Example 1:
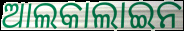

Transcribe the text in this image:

ଆଲକାଲାଇନ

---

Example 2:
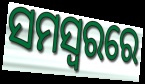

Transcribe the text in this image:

ସମସ୍ବରରେ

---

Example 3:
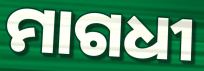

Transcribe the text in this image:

ମାଗଧୀ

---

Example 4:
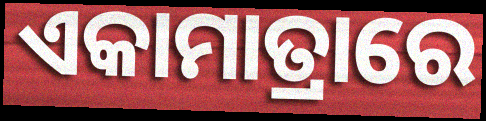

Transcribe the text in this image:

ଏକାମାତ୍ରାରେ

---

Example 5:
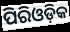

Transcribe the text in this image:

ପିରିଓଡ଼ିକ